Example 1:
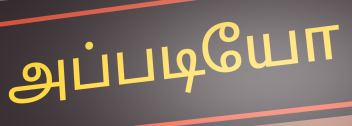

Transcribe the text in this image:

அப்படியோ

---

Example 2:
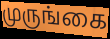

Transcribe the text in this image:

முருங்கை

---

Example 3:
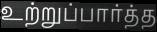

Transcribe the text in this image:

உற்றுப்பார்த்த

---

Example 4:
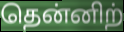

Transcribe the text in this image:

தென்னிற்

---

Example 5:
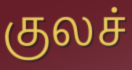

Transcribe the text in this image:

குலச்